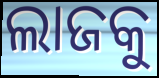
ଲାଜକୁ